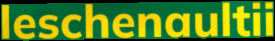
leschenaultii